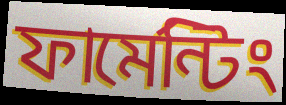
ফার্মেন্টিং